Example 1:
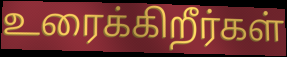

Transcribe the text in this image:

உரைக்கிறீர்கள்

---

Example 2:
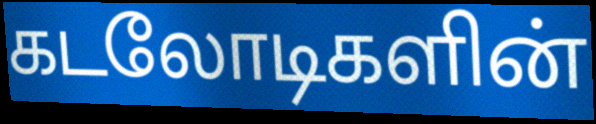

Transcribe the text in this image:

கடலோடிகளின்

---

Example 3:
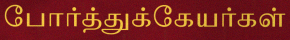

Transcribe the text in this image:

போர்த்துக்கேயர்கள்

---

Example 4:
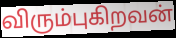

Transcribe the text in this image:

விரும்புகிறவன்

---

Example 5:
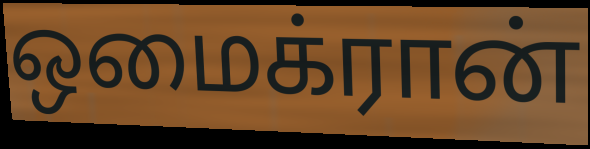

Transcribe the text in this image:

ஒமைக்ரான்